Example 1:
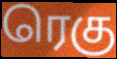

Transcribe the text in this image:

ரெகு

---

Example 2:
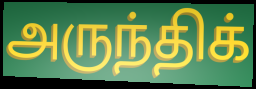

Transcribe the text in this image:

அருந்திக்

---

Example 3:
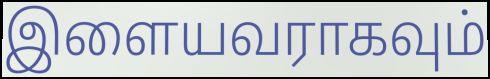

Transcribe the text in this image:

இளையவராகவும்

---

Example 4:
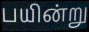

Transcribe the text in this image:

பயின்று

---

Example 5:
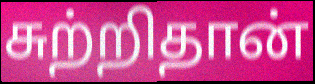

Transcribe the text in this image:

சுற்றிதான்